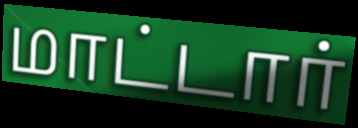
மாட்டார்